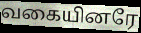
வகையினரே